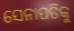
ସେନାପତିକୁ